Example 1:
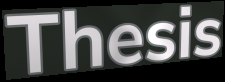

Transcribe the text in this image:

Thesis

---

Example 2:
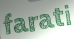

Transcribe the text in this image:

farati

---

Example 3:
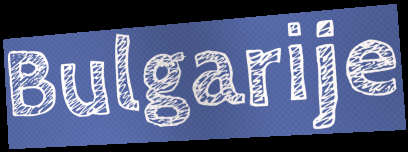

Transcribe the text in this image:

Bulgarije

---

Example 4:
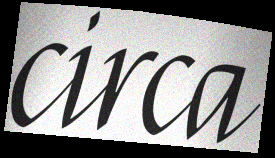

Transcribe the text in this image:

circa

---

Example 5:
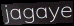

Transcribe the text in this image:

jagaye